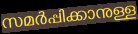
സമർപ്പിക്കാനുള്ള